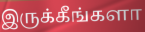
இருக்கீங்களா